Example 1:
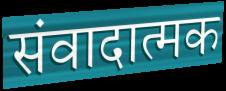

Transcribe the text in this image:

संवादात्मक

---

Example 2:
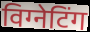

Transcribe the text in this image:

विग्नेटिंग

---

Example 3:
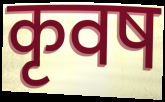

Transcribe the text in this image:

कृवष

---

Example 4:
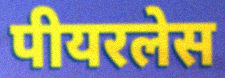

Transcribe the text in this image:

पीयरलेस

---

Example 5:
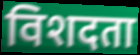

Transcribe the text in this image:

विशदता